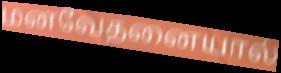
மனவேதனையால்